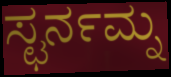
ಸ್ಟರ್ನಮ್ನ